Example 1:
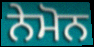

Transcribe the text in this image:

ਨੇਮੋਨ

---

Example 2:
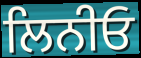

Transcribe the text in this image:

ਲਿਨੀਓ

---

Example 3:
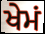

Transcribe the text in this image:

ਖੇਮਂ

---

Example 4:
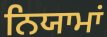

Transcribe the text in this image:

ਨਿਯਾਮਾਂ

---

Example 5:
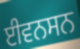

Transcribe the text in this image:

ਈਵਨਸਨ